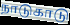
நாடுகாடு